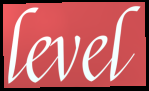
level